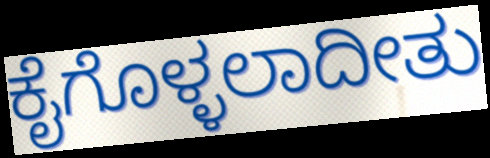
ಕೈಗೊಳ್ಳಲಾದೀತು